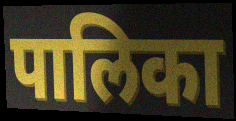
पालिका